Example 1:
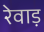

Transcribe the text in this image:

रेवाड़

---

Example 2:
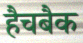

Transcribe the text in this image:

हैचबैक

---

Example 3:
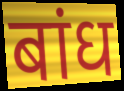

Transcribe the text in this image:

बांध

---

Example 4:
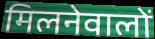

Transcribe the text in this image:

मिलनेवालों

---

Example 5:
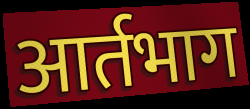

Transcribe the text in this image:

आर्तभाग